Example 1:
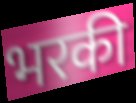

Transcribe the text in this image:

भरकी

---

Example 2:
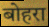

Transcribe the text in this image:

बोहरा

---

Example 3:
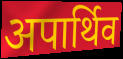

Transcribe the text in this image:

अपार्थिव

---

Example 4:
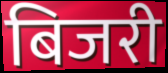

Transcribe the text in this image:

बिजरी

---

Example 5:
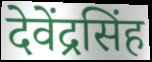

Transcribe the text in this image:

देवेंद्रसिंह